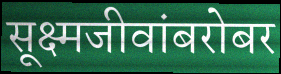
सूक्ष्मजीवांबरोबर